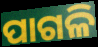
ପାଗଳି